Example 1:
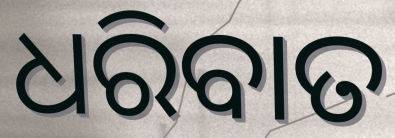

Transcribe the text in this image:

ଧରିବାତ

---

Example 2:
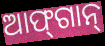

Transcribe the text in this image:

ଆଫ୍‌ଗାନ୍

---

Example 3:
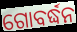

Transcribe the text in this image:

ଗୋବର୍ଦ୍ଧନ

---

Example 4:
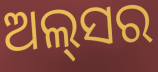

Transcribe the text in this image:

ଅଲ୍‌ସର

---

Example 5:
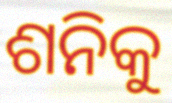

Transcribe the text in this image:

ଶନିକୁ